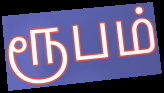
ரூபம்